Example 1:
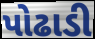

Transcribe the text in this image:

પોઢાડી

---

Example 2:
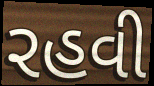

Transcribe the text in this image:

રહવી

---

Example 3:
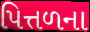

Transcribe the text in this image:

પિત્તળના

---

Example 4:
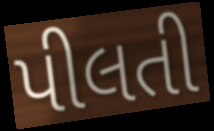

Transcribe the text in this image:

પીલતી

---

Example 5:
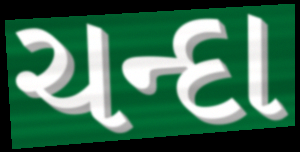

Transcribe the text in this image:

ચન્દા